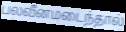
பலவீனமடைந்தால்